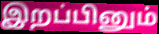
இறப்பினும்